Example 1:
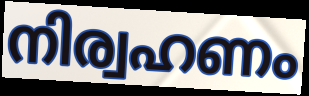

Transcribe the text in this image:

നിര്വഹണം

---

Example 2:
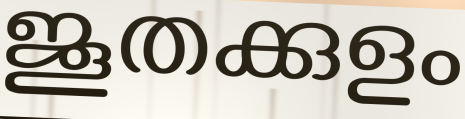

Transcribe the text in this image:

ജൂതക്കുളം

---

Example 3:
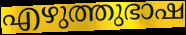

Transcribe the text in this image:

എഴുത്തുഭാഷ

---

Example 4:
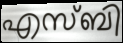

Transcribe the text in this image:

എസ്ബി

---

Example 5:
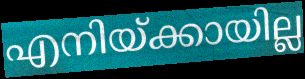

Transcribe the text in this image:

എനിയ്ക്കായില്ല